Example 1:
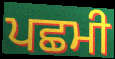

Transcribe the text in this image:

ਪਛਮੀ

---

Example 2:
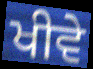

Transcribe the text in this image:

ਖੀਵੇ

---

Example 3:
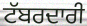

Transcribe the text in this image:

ਟੱਬਰਦਾਰੀ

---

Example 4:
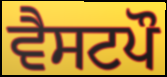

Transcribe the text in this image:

ਵੈਸਟਪੌ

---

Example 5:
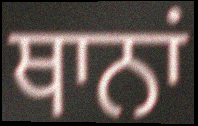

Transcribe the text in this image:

ਥਾਨਾਂ